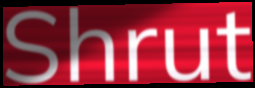
Shrut